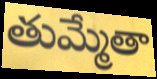
తుమ్మేతా